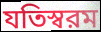
যতিস্বরম